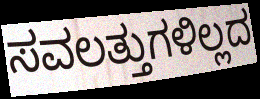
ಸವಲತ್ತುಗಳಿಲ್ಲದ